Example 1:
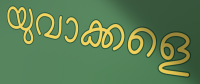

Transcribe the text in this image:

യുവാക്കളെ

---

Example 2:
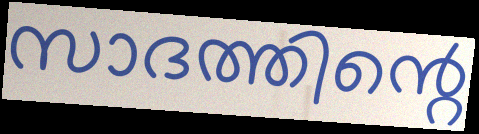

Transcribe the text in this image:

സാദത്തിന്റെ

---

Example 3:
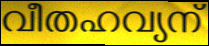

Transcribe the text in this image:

വീതഹവ്യന്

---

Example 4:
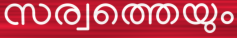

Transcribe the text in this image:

സര്വത്തെയും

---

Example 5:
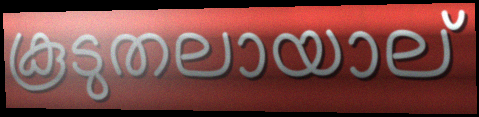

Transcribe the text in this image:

കൂടുതലായാല്